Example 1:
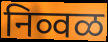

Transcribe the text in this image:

निव्‍वळ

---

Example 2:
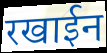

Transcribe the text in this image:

रखाईन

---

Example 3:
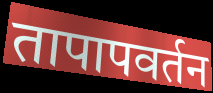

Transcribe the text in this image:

तापापवर्तन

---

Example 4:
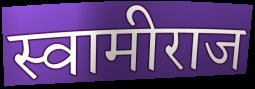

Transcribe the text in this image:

स्वामीराज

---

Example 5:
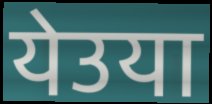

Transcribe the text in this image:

येउया